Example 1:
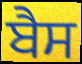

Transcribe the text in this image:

ਬੈਸ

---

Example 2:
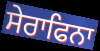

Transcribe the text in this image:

ਸੇਰਾਫਿਨਾ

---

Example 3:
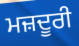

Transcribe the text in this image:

ਮਜ਼ਦੂਰੀ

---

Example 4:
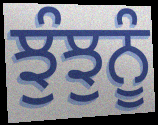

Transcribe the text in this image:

ਝੁੰਝੁਨੂੰ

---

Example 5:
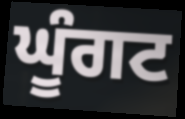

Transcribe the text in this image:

ਘੂੰਗਟ